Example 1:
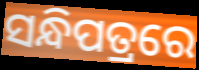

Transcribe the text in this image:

ସନ୍ଧିପତ୍ରରେ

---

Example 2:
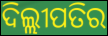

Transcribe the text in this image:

ଦିଲ୍ଲୀପତିର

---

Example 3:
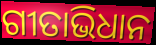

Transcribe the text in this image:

ଗୀତାଭିଧାନ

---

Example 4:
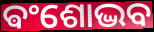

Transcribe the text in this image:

ଵଂଶୋଦ୍ଭବ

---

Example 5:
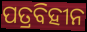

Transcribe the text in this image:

ପତ୍ରବିହୀନ